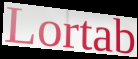
Lortab